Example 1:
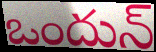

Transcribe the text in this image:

ఒందున్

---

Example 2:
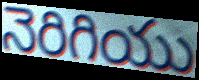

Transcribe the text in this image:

నెరిగియు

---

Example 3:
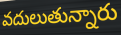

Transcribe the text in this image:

వదులుతున్నారు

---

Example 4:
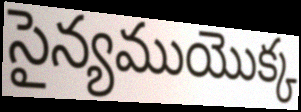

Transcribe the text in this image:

సైన్యముయొక్క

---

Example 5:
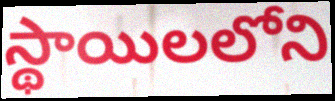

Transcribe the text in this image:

స్థాయిలలోని